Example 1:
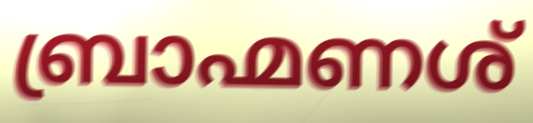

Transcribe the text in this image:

ബ്രാഹ്മണശ്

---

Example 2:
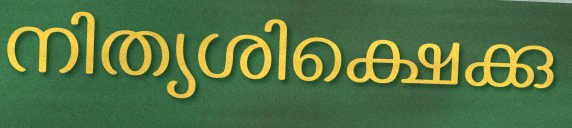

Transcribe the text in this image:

നിത്യശിക്ഷെക്കു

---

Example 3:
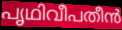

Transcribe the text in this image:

പൃഥിവീപതീൻ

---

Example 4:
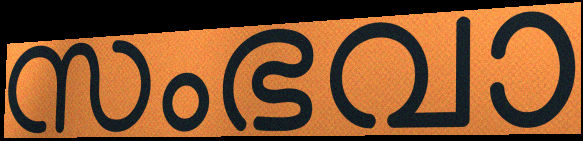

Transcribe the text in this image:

സംഭവാ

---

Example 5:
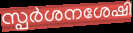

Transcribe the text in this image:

സ്പർശനശേഷി